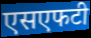
एसएफटी